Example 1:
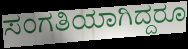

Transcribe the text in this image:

ಸಂಗತಿಯಾಗಿದ್ದರೂ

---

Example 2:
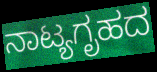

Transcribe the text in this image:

ನಾಟ್ಯಗೃಹದ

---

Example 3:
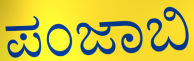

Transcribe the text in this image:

ಪಂಜಾಬಿ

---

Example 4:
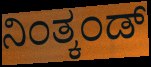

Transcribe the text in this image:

ನಿಂತ್ಕಂಡ್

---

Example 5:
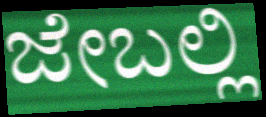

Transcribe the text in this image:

ಜೇಬಲ್ಲಿ